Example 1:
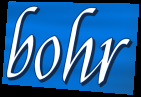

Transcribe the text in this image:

bohr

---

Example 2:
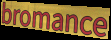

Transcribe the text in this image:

bromance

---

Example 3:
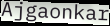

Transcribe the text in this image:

Ajgaonkar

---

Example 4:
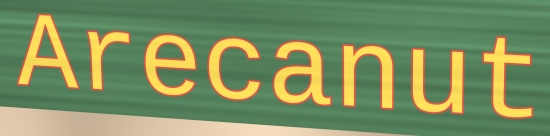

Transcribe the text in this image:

Arecanut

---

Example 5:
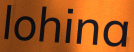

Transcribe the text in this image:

lohina